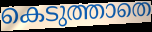
കെടുത്താതെ